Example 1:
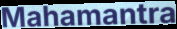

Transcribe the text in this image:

Mahamantra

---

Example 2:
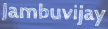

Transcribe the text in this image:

Jambuvijay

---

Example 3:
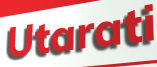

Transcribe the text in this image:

Utarati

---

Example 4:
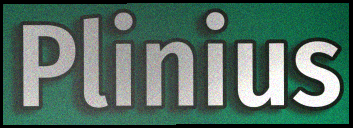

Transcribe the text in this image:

Plinius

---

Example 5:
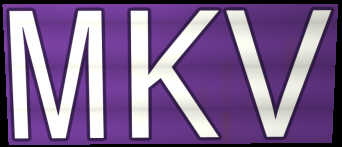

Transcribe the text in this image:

MKV